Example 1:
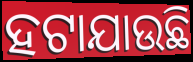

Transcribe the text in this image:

ହଟାଯାଉଛି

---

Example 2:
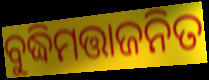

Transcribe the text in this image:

ବୁଦ୍ଧିମତ୍ତାଜନିତ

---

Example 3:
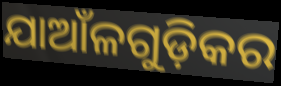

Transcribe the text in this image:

ଯାଆଁଳଗୁଡ଼ିକର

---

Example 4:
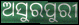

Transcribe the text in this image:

ଅସୁରପୁରୀ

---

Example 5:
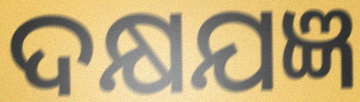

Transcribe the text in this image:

ଦକ୍ଷଯଜ୍ଞ